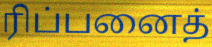
ரிப்பனைத்